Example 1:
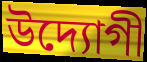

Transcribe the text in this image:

উদ্যোগী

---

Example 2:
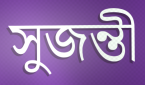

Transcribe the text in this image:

সুজন্তী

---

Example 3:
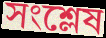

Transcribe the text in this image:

সংশ্লেষ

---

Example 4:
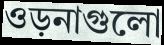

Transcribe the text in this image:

ওড়নাগুলো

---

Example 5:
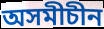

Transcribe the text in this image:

অসমীচীন